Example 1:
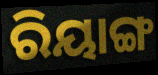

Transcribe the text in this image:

ରିୟାଙ୍ଗ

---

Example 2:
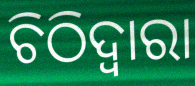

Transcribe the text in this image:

ଚିଠିଦ୍ୱାରା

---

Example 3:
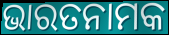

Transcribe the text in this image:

ଭାରତନାମକ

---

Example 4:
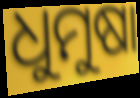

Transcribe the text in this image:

ଧୁମୁଷା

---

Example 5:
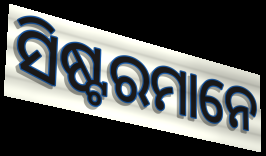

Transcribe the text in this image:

ସିଷ୍ଟରମାନେ